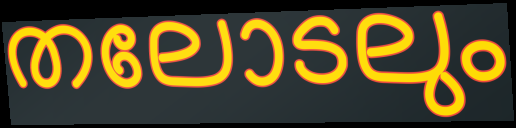
തലോടലും